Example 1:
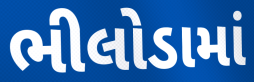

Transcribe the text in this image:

ભીલોડામાં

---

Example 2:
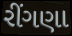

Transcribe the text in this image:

રીંગણા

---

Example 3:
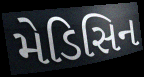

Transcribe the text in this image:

મેડિસિન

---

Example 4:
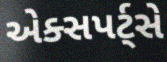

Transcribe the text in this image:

એક્સપર્ટ્સે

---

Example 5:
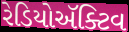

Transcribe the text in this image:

રેડિયોઍક્ટિવ